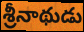
శ్రీనాథుడు